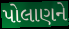
પોલાણને